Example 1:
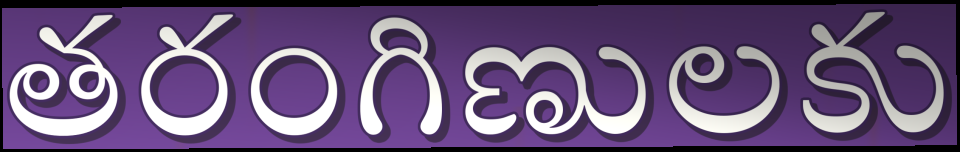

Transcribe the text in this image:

తరంగిణులకు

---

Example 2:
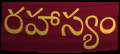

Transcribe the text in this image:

రహాస్యం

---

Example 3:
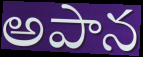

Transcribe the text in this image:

అపాన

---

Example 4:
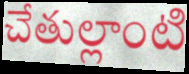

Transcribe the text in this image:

చేతుల్లాంటి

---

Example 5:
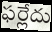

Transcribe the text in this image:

ఫర్లేదు